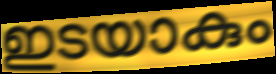
ഇടയാകും